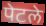
पेटले